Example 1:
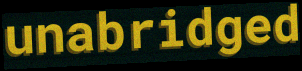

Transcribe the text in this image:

unabridged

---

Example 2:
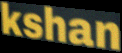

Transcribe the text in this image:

kshan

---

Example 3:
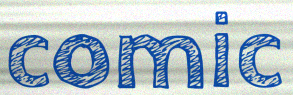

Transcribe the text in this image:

comic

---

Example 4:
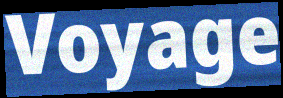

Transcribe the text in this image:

Voyage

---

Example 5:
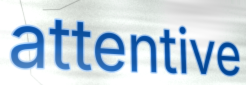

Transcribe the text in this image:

attentive